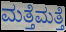
ಮತ್ತೆಮತ್ತೆ